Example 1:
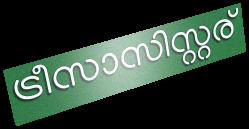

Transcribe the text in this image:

ട്രീസാസിസ്റ്റര്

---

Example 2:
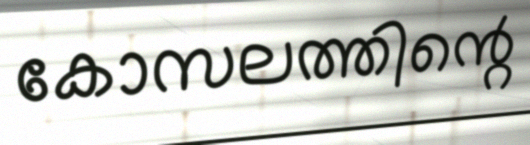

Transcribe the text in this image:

കോസലത്തിന്റെ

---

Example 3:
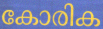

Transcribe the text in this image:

കോരിക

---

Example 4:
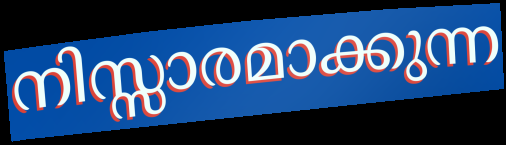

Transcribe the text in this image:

നിസ്സാരമാക്കുന്ന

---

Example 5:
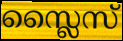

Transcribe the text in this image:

സ്ലൈസ്